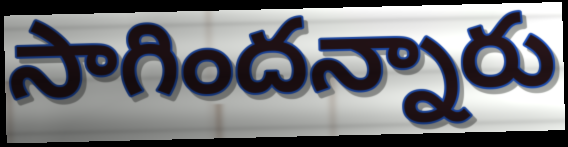
సాగిందన్నారు